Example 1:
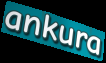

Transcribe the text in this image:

ankura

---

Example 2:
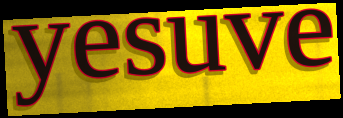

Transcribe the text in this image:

yesuve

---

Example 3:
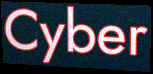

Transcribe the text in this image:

Cyber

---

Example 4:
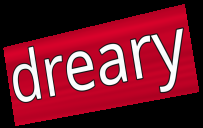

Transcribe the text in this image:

dreary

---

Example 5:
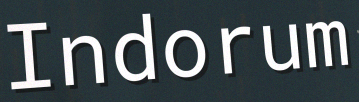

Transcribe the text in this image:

Indorum